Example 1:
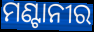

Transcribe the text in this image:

ମଣ୍ଟାନୀର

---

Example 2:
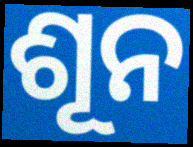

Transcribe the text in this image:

ଶୂନ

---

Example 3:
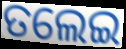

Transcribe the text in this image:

ତଲେଇ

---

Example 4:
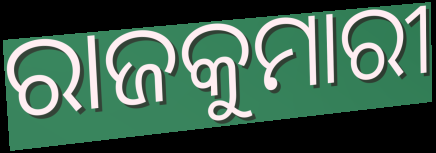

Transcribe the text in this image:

ରାଜକୁମାରୀ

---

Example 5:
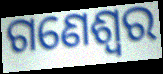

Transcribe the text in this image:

ଗଣେଶ୍ୱର